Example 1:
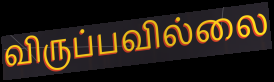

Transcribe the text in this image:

விருப்பவில்லை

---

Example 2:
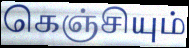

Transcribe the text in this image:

கெஞ்சியும்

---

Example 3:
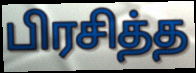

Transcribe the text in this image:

பிரசித்த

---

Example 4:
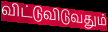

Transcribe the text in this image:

விட்டுவிடுவதும்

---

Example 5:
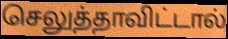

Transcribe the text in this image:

செலுத்தாவிட்டால்